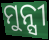
ମୁନ୍ସୀ